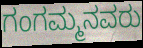
ಗಂಗಮ್ಮನವರು